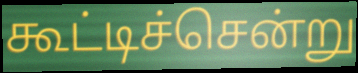
கூட்டிச்சென்று